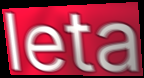
leta